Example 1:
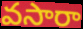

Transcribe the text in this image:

వసారా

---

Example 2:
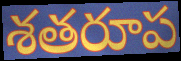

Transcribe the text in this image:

శతరూప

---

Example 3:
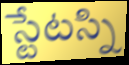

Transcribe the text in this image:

స్టేటస్ని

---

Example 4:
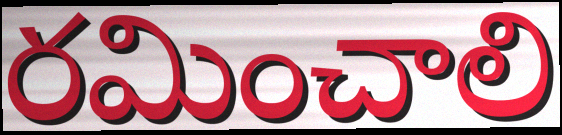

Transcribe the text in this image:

రమించాలి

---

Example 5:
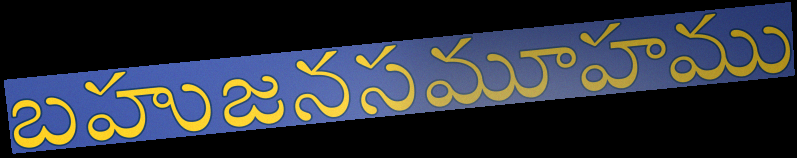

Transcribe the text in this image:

బహుజనసమూహము